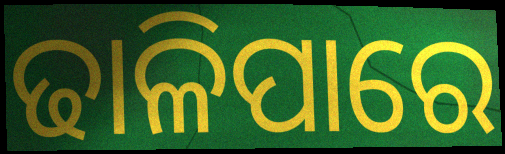
ଢାଳିପାରେ